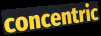
concentric